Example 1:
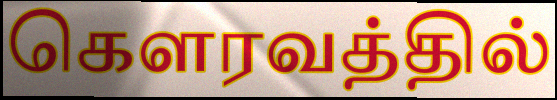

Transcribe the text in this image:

கௌரவத்தில்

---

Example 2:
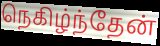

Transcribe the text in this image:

நெகிழ்ந்தேன்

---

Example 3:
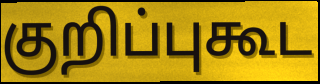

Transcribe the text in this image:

குறிப்புகூட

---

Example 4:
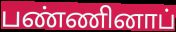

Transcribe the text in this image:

பண்ணினாப்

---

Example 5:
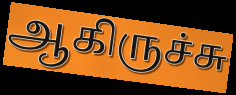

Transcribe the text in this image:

ஆகிருச்சு